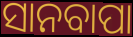
ସାନବାପା